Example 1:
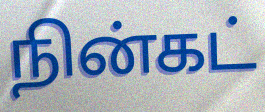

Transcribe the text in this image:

நின்கட்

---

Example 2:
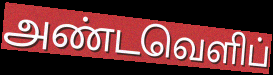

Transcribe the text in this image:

அண்டவெளிப்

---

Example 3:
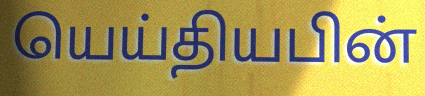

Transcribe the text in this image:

யெய்தியபின்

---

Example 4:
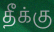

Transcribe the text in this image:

தீக்கு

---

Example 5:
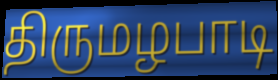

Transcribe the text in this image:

திருமழபாடி